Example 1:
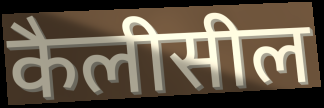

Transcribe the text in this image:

कैलीसील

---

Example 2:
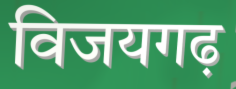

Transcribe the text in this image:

विजयगढ़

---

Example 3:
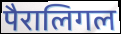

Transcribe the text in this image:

पैरालिगल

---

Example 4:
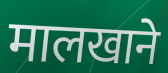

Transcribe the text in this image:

मालखाने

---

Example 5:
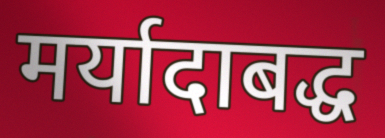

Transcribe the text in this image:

मर्यादाबद्ध